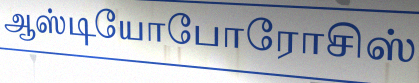
ஆஸ்டியோபோரோசிஸ்